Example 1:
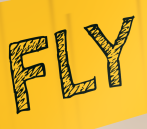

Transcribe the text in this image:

FLY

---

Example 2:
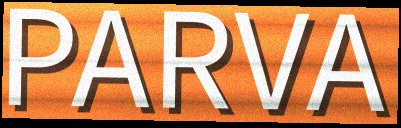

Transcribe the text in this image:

PARVA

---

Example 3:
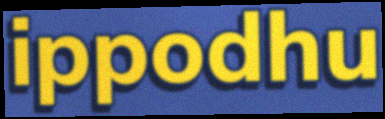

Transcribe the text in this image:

ippodhu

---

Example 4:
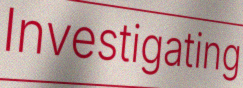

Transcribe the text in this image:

Investigating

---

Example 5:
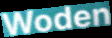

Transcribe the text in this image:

Woden